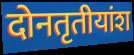
दोनतृतीयांश